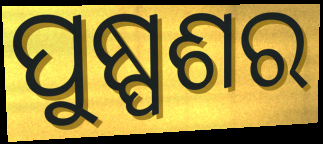
ପୁଷ୍ପଶର